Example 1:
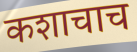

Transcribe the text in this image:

कशाचाच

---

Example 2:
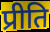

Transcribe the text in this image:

प्रीति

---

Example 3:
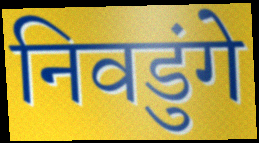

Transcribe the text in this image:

निवडुंगे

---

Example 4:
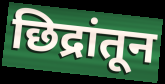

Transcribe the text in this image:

छिद्रांतून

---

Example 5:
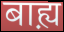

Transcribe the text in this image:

बाह्य़